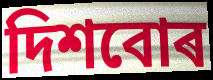
দিশবোৰ